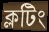
ক্লটিং